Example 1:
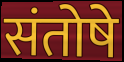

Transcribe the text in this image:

संतोषे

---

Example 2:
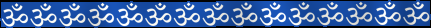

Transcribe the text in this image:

ॐॐॐॐॐॐॐॐॐॐॐॐॐॐॐ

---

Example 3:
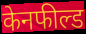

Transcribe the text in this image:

केनफील्ड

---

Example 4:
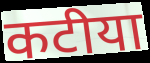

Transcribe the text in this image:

कटीया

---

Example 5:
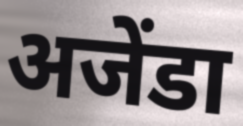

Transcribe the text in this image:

अजेंडा